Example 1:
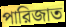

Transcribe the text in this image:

পারিজাত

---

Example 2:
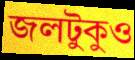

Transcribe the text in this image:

জলটুকুও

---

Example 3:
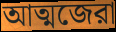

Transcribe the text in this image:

আত্মজেরা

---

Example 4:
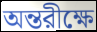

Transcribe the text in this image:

অন্তরীক্ষে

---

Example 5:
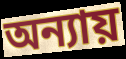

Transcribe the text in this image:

অন্যায়